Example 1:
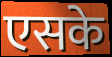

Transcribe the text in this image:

एसके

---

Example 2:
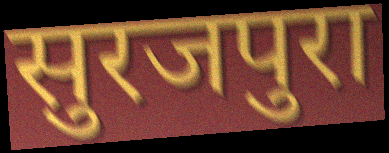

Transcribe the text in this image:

सुरजपुरा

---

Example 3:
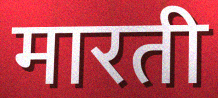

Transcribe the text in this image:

मारती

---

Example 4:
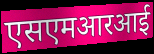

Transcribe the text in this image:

एसएमआरआई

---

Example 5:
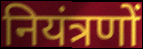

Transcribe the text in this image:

नियंत्रणों